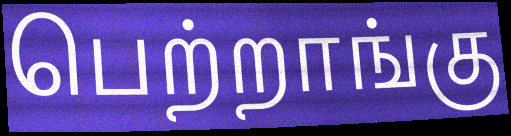
பெற்றாங்கு